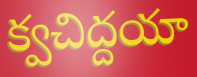
క్వచిద్దయా